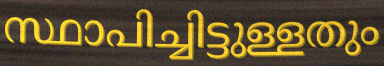
സ്ഥാപിച്ചിട്ടുള്ളതും